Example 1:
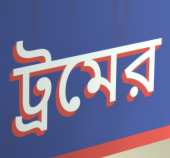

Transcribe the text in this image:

ট্রমের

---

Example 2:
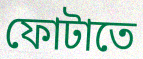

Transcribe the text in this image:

ফোটাতে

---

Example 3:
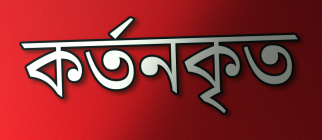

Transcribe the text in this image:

কর্তনকৃত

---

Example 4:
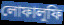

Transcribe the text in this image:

লোফালুফি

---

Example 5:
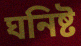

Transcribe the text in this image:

ঘনিষ্ট